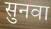
सुनवा